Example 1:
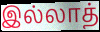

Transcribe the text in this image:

இல்லாத்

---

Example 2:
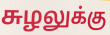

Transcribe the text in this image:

சுழலுக்கு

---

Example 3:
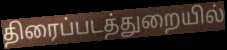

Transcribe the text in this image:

திரைப்படத்துறையில்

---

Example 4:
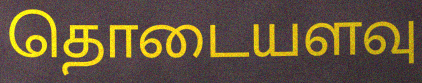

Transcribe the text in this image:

தொடையளவு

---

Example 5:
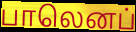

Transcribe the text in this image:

பாலெனப்